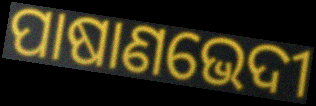
ପାଷାଣଭେଦୀ